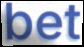
bet